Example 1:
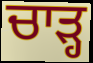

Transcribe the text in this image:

ਚਾਡ਼੍ਹ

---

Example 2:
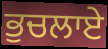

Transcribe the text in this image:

ਭੁਚਲਾਏ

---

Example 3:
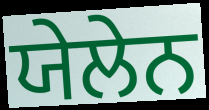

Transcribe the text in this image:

ਯੇਲੇਨ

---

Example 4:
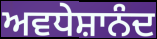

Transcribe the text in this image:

ਅਵਧੇਸ਼ਾਨੰਦ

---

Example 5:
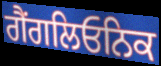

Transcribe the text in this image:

ਗੈਂਗਲਿਓਨਿਕ